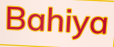
Bahiya